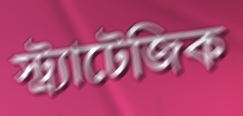
স্ট্র্যাটেজিক